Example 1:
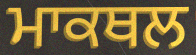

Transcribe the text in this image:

ਮਾਕਥਲ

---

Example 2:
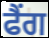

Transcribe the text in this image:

ਫੈਂਗ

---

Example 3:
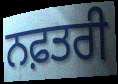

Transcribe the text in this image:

ਨਫ਼ਤਰੀ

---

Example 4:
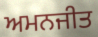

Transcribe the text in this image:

ਅਮਨਜੀਤ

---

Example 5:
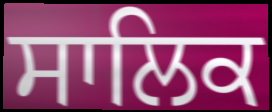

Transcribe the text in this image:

ਸਾਲਿਕ